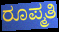
ರೂಪ್ಮತಿ